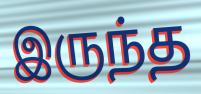
இருந்த